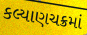
કલ્યાણચક્રમાં